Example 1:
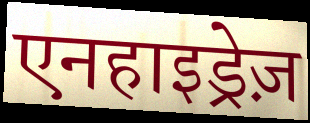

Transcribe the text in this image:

एनहाइड्रेज़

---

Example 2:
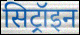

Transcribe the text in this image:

सिट्रॉइन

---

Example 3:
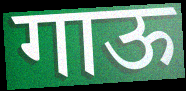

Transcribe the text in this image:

गाऊ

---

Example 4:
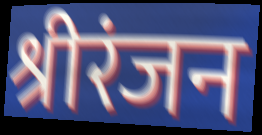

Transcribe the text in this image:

श्रीरंजन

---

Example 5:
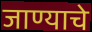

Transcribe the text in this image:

जाण्याचे